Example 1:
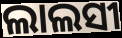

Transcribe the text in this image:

ଲାଲସୀ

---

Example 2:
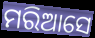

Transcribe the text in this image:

ମରିଆସେ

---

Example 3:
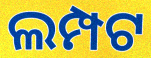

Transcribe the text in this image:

ଲମ୍ପଟ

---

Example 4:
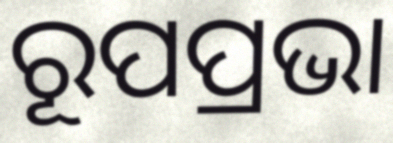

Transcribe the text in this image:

ରୂପପ୍ରଭା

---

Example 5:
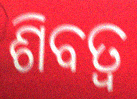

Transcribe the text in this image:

ଶିବତ୍ୱ